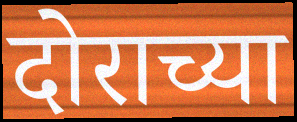
दोराच्या